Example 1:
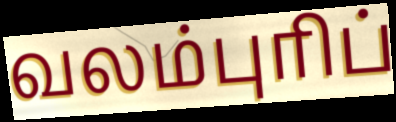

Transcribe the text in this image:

வலம்புரிப்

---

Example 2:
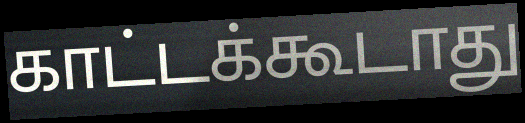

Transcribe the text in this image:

காட்டக்கூடாது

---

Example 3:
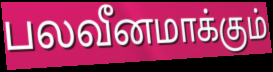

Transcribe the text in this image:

பலவீனமாக்கும்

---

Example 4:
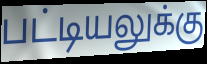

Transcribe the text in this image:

பட்டியலுக்கு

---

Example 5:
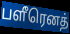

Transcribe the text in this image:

பளீரெனத்